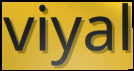
viyal